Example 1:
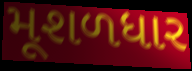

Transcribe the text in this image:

મૂશળધાર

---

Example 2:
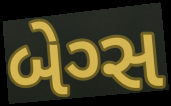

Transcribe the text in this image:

બેગ્સ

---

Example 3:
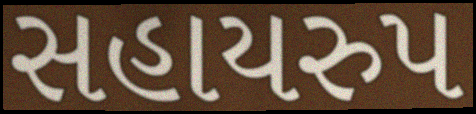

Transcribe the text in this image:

સહાયરુપ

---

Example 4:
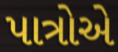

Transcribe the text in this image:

પાત્રોએ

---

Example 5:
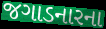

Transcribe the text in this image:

જગાડનારના